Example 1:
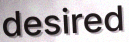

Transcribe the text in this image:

desired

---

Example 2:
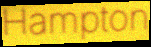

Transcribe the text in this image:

Hampton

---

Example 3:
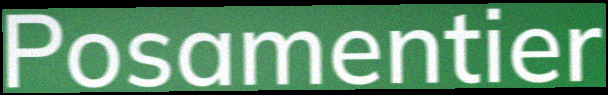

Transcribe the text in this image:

Posamentier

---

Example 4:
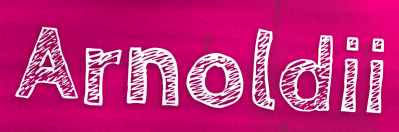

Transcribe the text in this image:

Arnoldii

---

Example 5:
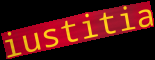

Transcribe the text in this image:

iustitia